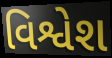
વિશ્વેશ